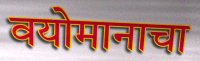
वयोमानाचा